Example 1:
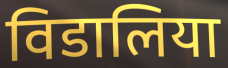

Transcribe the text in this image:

विडालिया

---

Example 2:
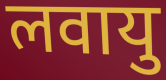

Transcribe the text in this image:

लवायु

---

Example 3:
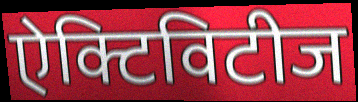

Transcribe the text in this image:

ऐक्टिविटीज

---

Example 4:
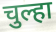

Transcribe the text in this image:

चुल्हा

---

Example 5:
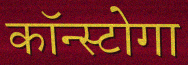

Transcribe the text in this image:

कॉन्स्टोगा